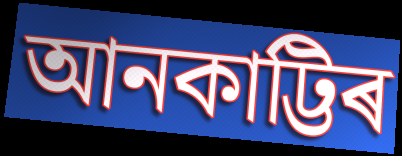
আনকাট্টিৰ